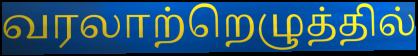
வரலாற்றெழுத்தில்